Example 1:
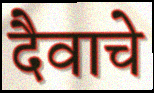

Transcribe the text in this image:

दैवाचे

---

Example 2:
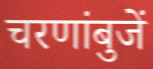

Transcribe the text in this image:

चरणांबुजें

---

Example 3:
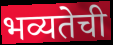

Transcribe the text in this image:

भव्यतेची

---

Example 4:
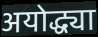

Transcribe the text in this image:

अयोद्ध्या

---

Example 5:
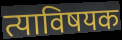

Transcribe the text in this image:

त्याविषयक